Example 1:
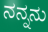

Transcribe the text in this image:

ನನ್ನನು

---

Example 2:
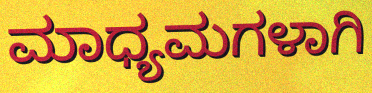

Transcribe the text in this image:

ಮಾಧ್ಯಮಗಳಾಗಿ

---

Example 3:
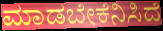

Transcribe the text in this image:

ಮಾಡಬೇಕೆನಿಸಿದೆ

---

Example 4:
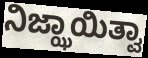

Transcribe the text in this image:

ನಿಜ್ಝಾಯಿತ್ವಾ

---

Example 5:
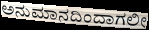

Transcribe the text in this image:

ಅನುಮಾನದಿಂದಾಗಲೀ